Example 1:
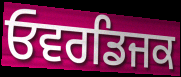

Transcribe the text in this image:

ਓਵਰਡਿਜਕ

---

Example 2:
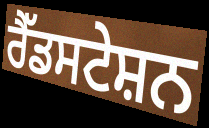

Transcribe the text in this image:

ਰੈੱਡਸਟੇਸ਼ਨ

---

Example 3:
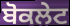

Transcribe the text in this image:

ਬੋਕਲੇਟ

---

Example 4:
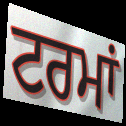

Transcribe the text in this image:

ਟਰਮਾਂ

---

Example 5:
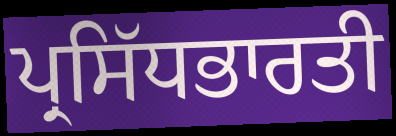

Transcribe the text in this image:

ਪ੍ਰਸਿੱਧਭਾਰਤੀ